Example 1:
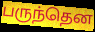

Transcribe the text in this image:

பருந்தென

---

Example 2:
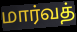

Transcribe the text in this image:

மார்வத்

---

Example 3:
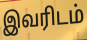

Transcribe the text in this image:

இவரிடம்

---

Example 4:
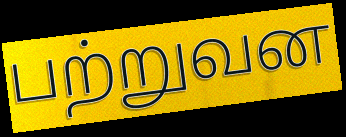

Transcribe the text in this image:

பற்றுவன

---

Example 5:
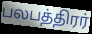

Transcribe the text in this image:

பலபத்திரர்